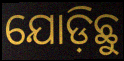
ଯୋଡ଼ିଛୁ